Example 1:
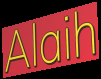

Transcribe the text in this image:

Alaih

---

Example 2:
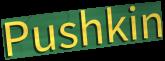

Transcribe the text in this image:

Pushkin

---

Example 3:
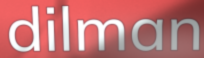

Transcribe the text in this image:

dilman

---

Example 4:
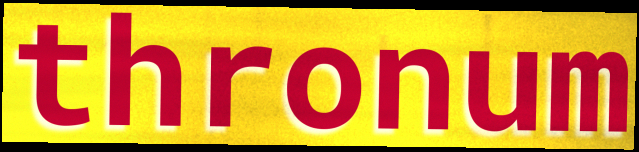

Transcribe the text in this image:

thronum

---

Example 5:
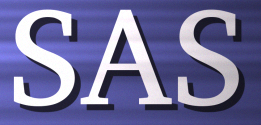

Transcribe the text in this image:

SAS